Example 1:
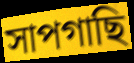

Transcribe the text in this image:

সাপগাছি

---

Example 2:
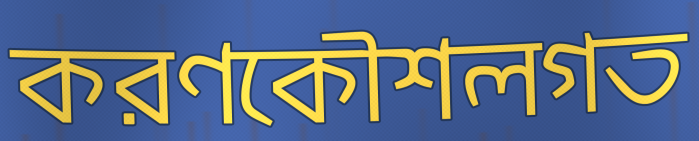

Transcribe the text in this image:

করণকৌশলগত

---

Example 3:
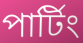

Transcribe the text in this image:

পার্টিং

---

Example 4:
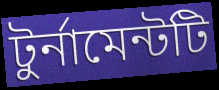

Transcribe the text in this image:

টুর্নামেন্টটি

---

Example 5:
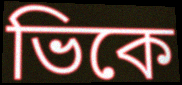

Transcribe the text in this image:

ভিকে